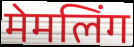
मेमलिंग